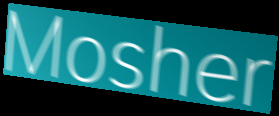
Mosher